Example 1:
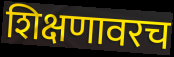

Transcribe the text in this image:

शिक्षणावरच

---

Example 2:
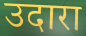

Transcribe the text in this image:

उदारा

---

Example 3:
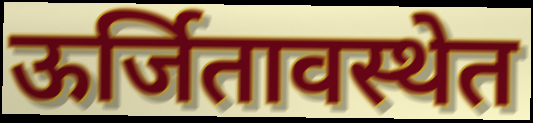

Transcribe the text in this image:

ऊर्जितावस्थेत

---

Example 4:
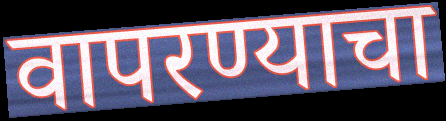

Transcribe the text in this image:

वापरण्याचा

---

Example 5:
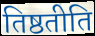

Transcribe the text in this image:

तिष्ठतीति